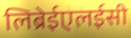
लिब्रेईएलईसी